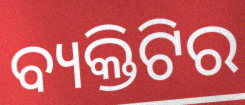
ବ୍ୟକ୍ତିଟିର